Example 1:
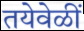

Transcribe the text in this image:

तयेवेळीं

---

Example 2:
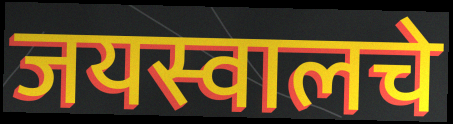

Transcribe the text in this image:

जयस्वालचे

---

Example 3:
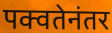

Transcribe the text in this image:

पक्वतेनंतर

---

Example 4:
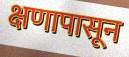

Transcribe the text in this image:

क्षणापासून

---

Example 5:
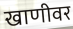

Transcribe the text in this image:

खाणीवर